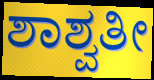
ಶಾಶ್ವತೀ